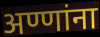
अण्णांना